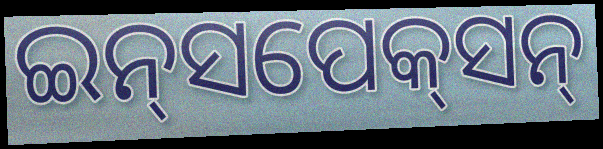
ଇନ୍‌ସପେକ୍‌ସନ୍